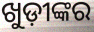
ଖୁଡ଼ୀଙ୍କର